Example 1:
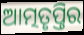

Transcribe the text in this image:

ଆତ୍ମତୃପ୍ତିର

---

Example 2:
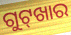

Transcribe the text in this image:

ଗୁଟ୍‌ଖାର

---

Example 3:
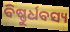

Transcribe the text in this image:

ବିଷ୍ଣୁର୍ଧବସ୍ୟ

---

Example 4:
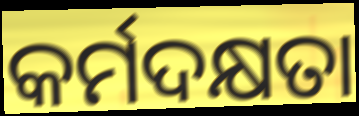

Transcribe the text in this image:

କର୍ମଦକ୍ଷତା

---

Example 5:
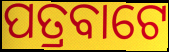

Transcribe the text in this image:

ପତ୍ରବାଟେ